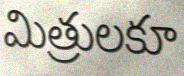
మిత్రులకూ